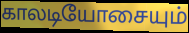
காலடியோசையும்